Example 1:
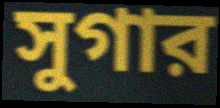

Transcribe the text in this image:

সুগার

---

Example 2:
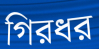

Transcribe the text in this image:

গিরধর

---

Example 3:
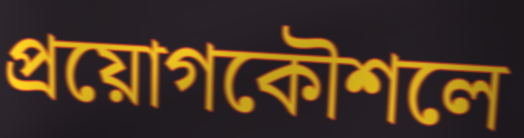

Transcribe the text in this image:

প্রয়োগকৌশলে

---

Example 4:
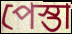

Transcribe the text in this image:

পেস্তা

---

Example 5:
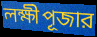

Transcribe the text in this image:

লক্ষীপূজার